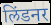
लिंडनर